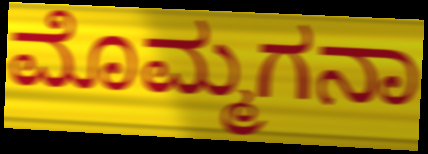
ಮೊಮ್ಮಗನಾ